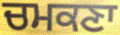
ਚਮਕਣਾ